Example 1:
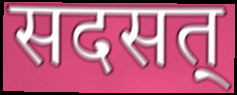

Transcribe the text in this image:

सदसत्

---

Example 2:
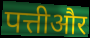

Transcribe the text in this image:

पत्तीऔर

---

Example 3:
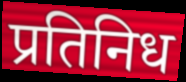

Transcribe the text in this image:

प्रतिनिध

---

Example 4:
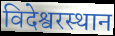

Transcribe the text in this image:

विदेश्वरस्थान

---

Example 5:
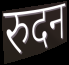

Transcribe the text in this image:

रुदन